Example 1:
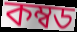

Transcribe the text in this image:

কম্বড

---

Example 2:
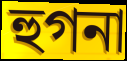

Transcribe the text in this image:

হুগনা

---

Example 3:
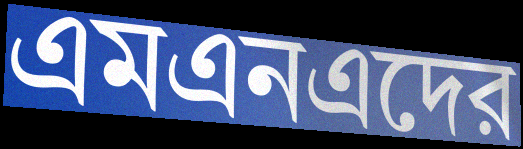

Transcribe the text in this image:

এমএনএদের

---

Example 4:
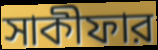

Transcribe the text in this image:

সাকীফার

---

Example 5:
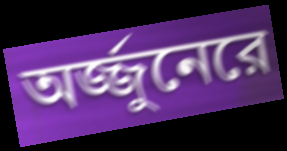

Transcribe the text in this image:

অর্জ্জুনেরে